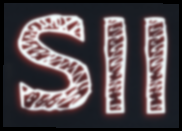
SII